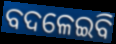
ବଦଳେଇବି